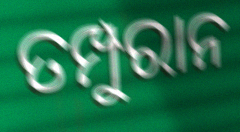
ତମ୍ପୁରାନ